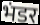
भंडर